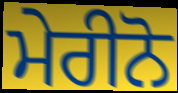
ਮੇਰੀਨੋ